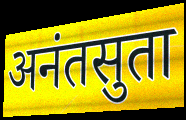
अनंतसुता